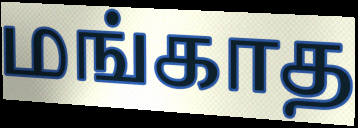
மங்காத